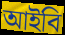
আইবি